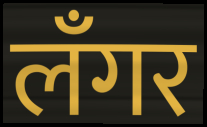
लँगर